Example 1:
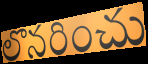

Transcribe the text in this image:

లొనరించు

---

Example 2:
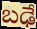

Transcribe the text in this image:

బఢే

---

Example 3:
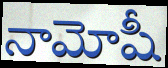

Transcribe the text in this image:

నామోషీ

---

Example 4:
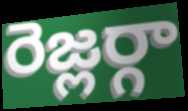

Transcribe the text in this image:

రెజ్లర్గా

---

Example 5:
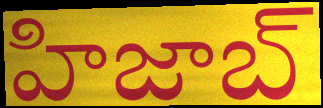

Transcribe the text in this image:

హిజాబ్